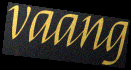
vaang